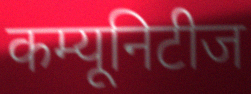
कम्यूनिटीज